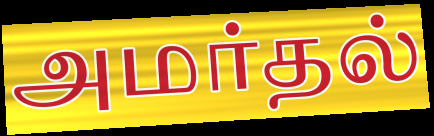
அமர்தல்